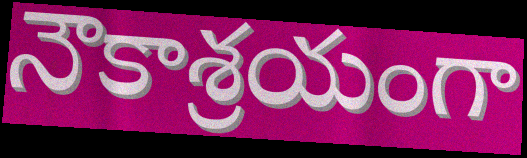
నౌకాశ్రయంగా